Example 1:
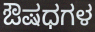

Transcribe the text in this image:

ಔಷಧಗಳ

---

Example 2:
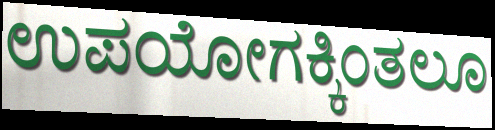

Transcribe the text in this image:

ಉಪಯೋಗಕ್ಕಿಂತಲೂ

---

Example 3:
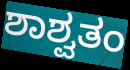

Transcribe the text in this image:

ಶಾಶ್ವತಂ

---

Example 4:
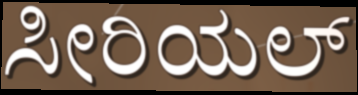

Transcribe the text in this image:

ಸೀರಿಯಲ್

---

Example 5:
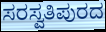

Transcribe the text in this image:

ಸರಸ್ವತಿಪುರದ